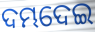
ଦମ୍ଭଦେଇ